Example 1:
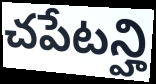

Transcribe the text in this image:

చపేటన్హి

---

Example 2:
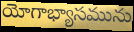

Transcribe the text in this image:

యోగాభ్యాసమును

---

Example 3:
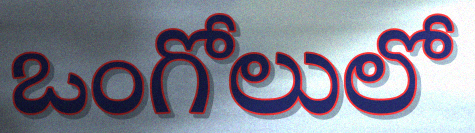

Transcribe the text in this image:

ఒంగోలులో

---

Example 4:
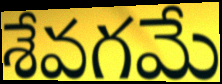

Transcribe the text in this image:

శేవగమే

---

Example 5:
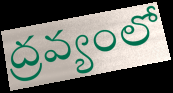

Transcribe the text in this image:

ద్రవ్యంలో